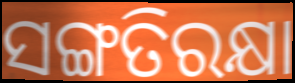
ସଙ୍ଗତିରକ୍ଷା